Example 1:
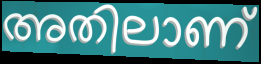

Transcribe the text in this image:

അതിലാണ്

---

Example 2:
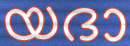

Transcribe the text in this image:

യദാ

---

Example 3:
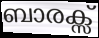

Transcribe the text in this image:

ബാരക്സ്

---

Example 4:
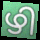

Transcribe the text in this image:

ഴി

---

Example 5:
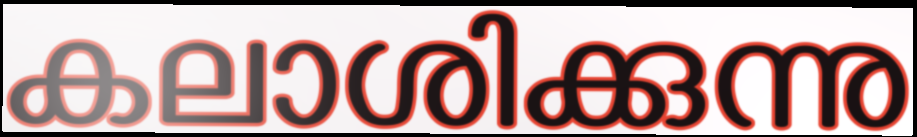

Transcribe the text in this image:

കലാശിക്കുന്നു